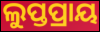
ଲୁପ୍ତପ୍ରାୟ